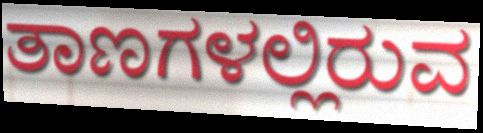
ತಾಣಗಳಲ್ಲಿರುವ